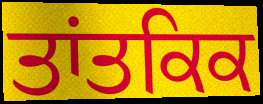
ਤਾਂਤਕਿਕ